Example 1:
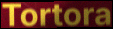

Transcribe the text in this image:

Tortora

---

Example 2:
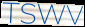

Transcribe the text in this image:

TSWV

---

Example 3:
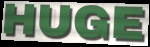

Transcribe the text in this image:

HUGE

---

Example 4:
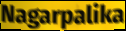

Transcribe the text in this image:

Nagarpalika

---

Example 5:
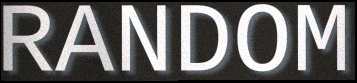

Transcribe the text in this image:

RANDOM